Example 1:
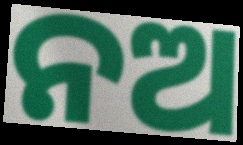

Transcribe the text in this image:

ନଅ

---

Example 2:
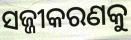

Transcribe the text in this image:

ସଜ୍ଜୀକରଣକୁ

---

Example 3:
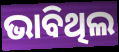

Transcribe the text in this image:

ଭାବିଥିଲ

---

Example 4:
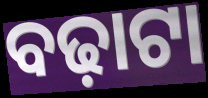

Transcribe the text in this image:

ବଢ଼ାଟା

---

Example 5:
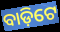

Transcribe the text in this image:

ବାଡ଼ିଟେ